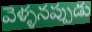
వెళ్ళనప్పుడు